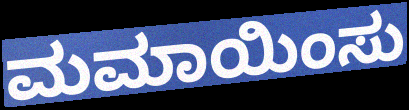
ಮಮಾಯಿಂಸು